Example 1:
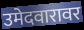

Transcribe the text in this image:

उमेदवारावर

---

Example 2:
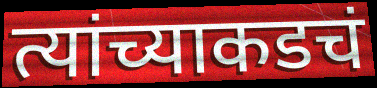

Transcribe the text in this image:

त्यांच्याकडचं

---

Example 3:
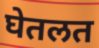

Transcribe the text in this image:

घेतलत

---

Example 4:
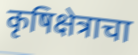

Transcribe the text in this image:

कृषिक्षेत्राचा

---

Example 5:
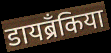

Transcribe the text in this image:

डायब्रँकिया